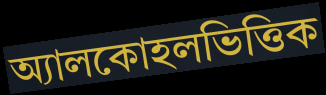
অ্যালকোহলভিত্তিক